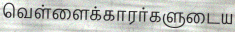
வெள்ளைக்காரர்களுடைய